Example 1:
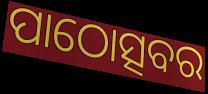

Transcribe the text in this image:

ପାଠୋତ୍ସବର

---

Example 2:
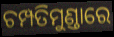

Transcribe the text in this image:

ଚମ୍ପତିମୁଣ୍ଡାରେ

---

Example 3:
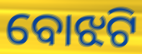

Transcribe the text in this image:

ବୋଝଟି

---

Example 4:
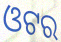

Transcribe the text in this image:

ଓଟର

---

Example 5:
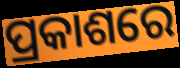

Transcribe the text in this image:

ପ୍ରକାଶରେ